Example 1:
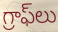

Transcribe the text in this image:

గ్రాఫ్‌లు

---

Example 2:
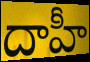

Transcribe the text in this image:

దాహీ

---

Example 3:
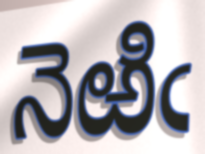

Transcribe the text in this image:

నెఱిఁ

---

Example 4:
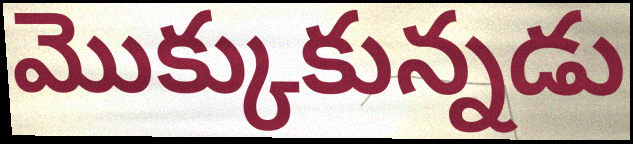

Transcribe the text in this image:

మొక్కుకున్నడు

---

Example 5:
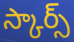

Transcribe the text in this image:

స్కార్స్